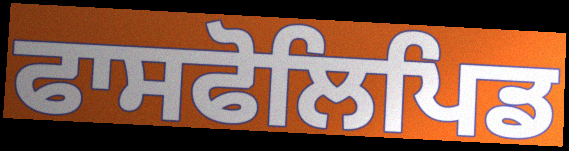
ਫਾਸਫੋਲਿਪਿਡ